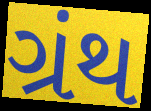
ગ્રંથ